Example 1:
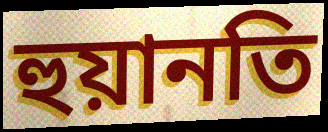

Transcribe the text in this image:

হুয়ানতি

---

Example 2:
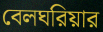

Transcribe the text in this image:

বেলঘরিয়ার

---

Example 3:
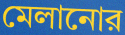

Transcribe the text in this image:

মেলানোর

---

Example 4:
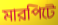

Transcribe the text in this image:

মারপিটে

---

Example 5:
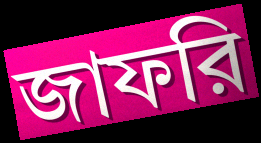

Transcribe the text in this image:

জাফরি